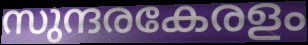
സുന്ദരകേരളം